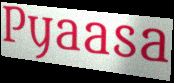
Pyaasa